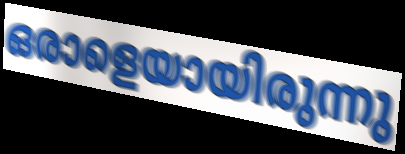
ഒരാളെയായിരുന്നു